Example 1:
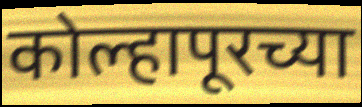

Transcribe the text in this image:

कोल्हापूरच्या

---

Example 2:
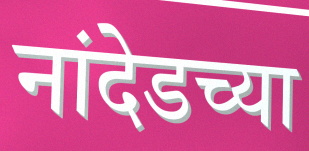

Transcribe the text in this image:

नांदेडच्या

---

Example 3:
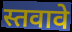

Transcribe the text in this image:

स्तवावे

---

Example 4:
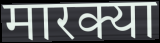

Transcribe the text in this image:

मारक्या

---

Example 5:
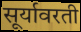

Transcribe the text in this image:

सूर्यावरती